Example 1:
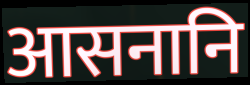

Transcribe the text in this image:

आसनानि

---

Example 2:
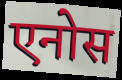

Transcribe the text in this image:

एनोस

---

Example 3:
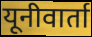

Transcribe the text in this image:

यूनीवार्ता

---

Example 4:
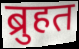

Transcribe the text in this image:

ब्रुहत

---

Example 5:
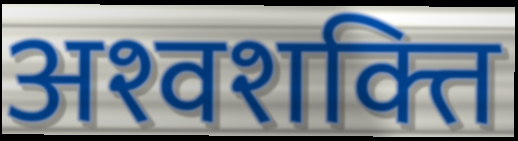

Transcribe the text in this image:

अश्वशक्ति